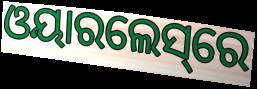
ଓୟାରଲେସ୍‌ରେ